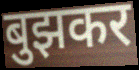
बुझकर